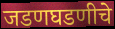
जडणघडणीचे